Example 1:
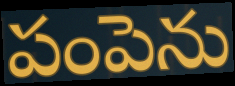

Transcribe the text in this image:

పంపెను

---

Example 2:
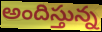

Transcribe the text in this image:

అందిస్తున్న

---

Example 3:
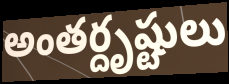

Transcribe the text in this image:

అంతర్దృష్టులు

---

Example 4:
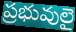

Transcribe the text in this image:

ప్రభువులై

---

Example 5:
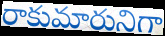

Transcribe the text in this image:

రాకుమారునిగా